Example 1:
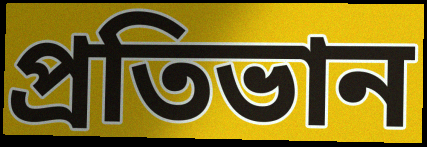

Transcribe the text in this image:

প্রতিভান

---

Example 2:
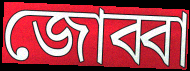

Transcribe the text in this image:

জোব্বা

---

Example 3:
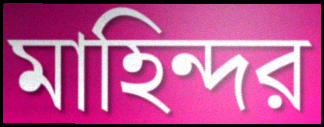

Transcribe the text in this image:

মাহিন্দর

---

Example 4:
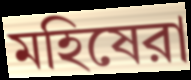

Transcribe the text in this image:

মহিষেরা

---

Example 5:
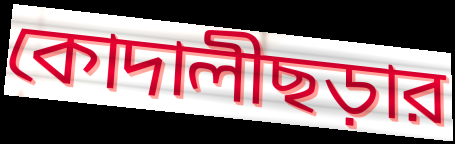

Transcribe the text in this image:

কোদালীছড়ার